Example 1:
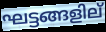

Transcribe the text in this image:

ഘട്ടങ്ങളില്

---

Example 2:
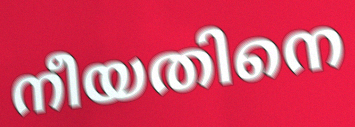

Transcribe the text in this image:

നീയതിനെ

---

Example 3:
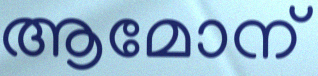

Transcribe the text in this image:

ആമോന്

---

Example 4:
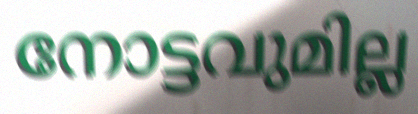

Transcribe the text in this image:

നോട്ടവുമില്ല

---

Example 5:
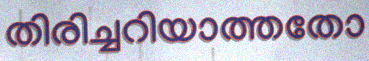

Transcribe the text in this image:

തിരിച്ചറിയാത്തതോ